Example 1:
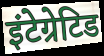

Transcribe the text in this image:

इंटेग्रेटिड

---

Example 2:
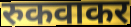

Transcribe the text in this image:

रुकवाकर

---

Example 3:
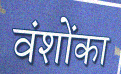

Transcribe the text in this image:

वंशोंका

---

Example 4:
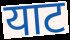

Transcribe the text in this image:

याट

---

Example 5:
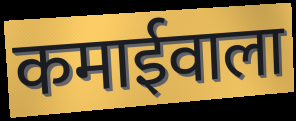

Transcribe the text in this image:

कमाईवाला